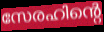
സേരഹിന്റെ